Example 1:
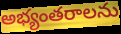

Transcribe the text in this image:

అభ్యంతరాలను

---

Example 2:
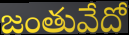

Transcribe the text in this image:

జంతువేదో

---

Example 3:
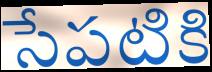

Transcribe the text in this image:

సేపటికి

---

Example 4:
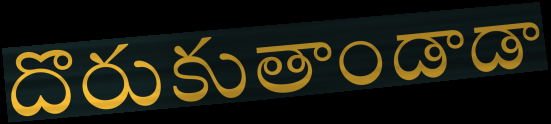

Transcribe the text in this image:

దొరుకుతాండాడా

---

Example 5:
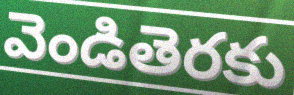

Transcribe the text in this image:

వెండితెరకు